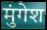
मुंगेश